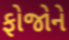
ફોજોને